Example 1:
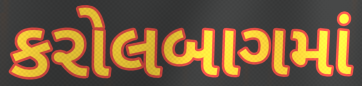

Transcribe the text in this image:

કરોલબાગમાં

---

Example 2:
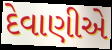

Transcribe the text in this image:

દેવાણીએ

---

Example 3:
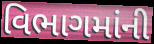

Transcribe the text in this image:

વિભાગમાંની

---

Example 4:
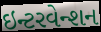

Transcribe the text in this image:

ઇન્ટરવેન્શન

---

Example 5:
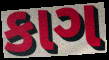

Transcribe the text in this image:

કાગ